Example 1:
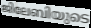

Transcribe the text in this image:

ജിലേബിയുടെ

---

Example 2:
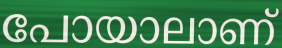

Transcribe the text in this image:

പോയാലാണ്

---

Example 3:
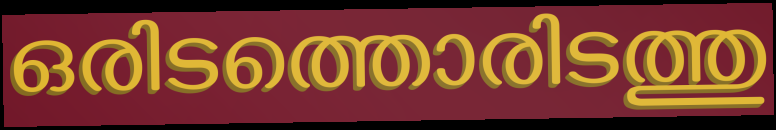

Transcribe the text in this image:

ഒരിടത്തൊരിടത്തു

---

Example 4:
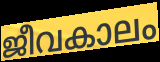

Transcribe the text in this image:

ജീവകാലം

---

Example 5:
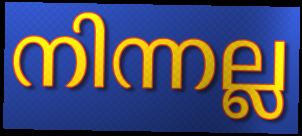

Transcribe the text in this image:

നിന്നല്ല